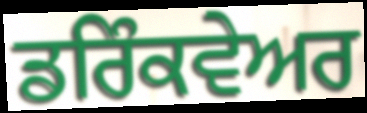
ਡਰਿੰਕਵੇਅਰ